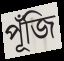
পূঁজি